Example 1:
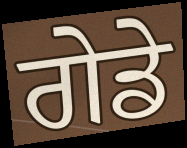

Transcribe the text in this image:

ਗੇਡੇ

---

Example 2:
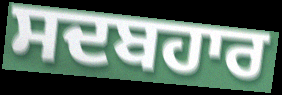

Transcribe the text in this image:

ਸਦਬਹਾਰ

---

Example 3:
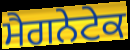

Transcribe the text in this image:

ਮੈਗਨੇਟੇਕ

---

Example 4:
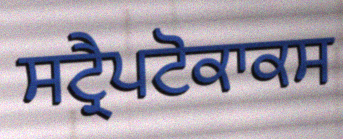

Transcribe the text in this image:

ਸਟ੍ਰੈਪਟੋਕਾਕਸ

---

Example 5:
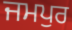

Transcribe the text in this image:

ਜਮਪੁਰ